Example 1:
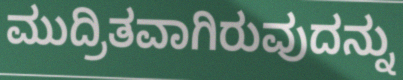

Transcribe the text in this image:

ಮುದ್ರಿತವಾಗಿರುವುದನ್ನು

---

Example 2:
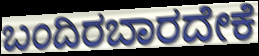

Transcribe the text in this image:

ಬಂದಿರಬಾರದೇಕೆ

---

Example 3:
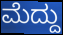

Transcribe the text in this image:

ಮೆದ್ದು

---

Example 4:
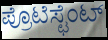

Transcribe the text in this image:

ಪ್ರೊಟೆಸ್ಟೆಂಟ್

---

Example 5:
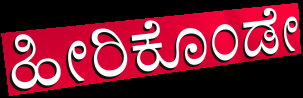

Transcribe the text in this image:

ಹೀರಿಕೊಂಡೇ